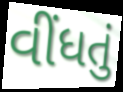
વીંધતું